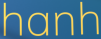
hanh